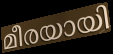
മീരയായി